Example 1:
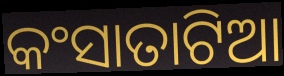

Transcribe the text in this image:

କଂସାତାଟିଆ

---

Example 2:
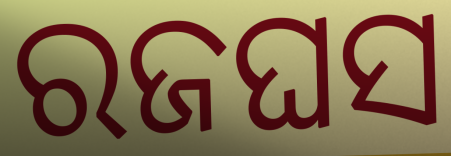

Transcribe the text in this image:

ରଜଘସ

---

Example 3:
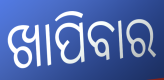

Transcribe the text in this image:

ଖାପିବାର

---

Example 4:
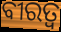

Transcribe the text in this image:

ବୀରତ୍ଵ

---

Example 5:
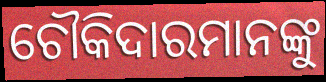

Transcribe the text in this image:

ଚୌକିଦାରମାନଙ୍କୁ